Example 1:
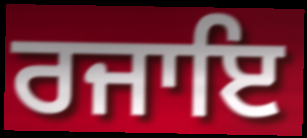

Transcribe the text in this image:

ਰਜਾਇ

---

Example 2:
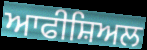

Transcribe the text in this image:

ਆਫੀਸ਼ਿਅਲ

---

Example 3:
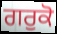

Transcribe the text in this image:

ਗਰੁਕੋ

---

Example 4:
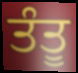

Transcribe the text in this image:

ਤੰਤੂ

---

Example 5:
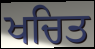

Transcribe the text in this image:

ਖਚਿਤ